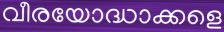
വീരയോദ്ധാക്കളെ